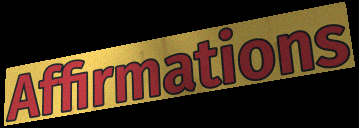
Affirmations